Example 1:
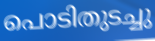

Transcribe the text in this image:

പൊടിതുടച്ചു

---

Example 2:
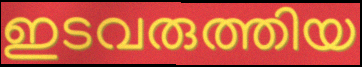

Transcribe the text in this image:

ഇടവരുത്തിയ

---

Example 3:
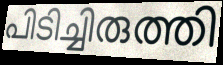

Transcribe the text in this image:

പിടിച്ചിരുത്തി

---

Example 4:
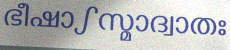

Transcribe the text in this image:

ഭീഷാഽസ്മാദ്വാതഃ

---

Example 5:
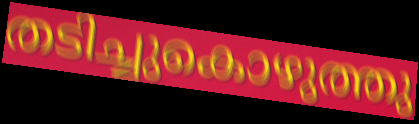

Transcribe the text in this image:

തടിച്ചുകൊഴുത്തു